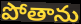
పోతాను